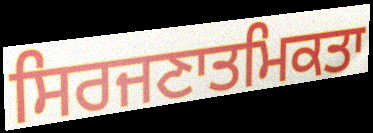
ਸਿਰਜਣਾਤਮਿਕਤਾ